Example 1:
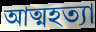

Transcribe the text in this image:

আত্মহত্যা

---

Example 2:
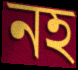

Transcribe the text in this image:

নহ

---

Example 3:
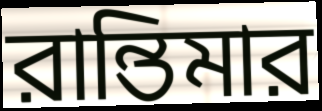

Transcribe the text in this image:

রান্তিমার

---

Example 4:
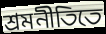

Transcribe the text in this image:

শ্রমনীতিতে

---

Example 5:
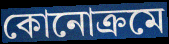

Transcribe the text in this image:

কোনোক্রমে